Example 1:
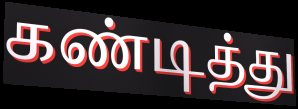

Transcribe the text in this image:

கண்டித்து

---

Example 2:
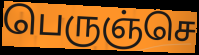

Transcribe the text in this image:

பெருஞ்செ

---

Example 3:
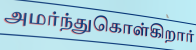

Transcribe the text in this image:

அமர்ந்துகொள்கிறார்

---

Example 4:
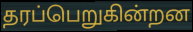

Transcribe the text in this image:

தரப்பெறுகின்றன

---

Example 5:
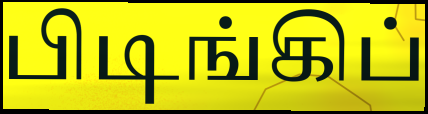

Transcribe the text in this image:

பிடிங்கிப்